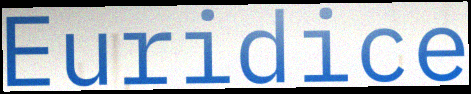
Euridice